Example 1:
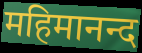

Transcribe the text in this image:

महिमानन्द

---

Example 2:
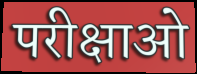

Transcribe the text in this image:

परीक्षाओ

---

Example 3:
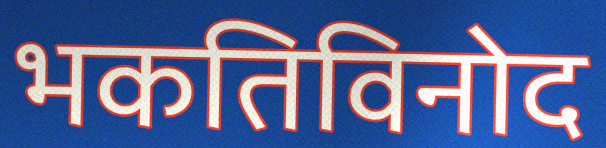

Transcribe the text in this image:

भकतिविनोद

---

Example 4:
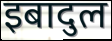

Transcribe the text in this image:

इबादुल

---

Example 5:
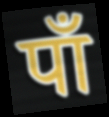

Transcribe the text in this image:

पाँ